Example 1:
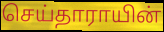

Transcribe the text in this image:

செய்தாராயின்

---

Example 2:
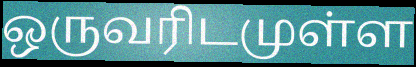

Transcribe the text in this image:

ஒருவரிடமுள்ள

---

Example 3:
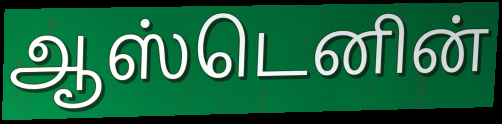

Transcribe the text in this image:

ஆஸ்டெனின்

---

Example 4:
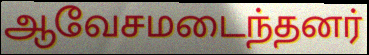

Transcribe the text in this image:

ஆவேசமடைந்தனர்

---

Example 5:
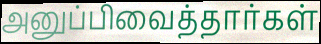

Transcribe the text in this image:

அனுப்பிவைத்தார்கள்